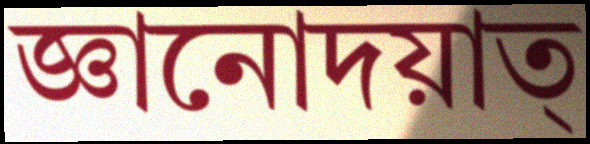
জ্ঞানোদয়াত্